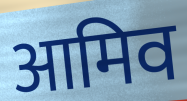
आमिव